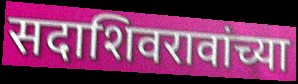
सदाशिवरावांच्या